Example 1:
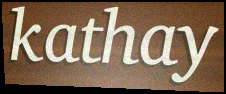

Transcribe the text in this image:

kathay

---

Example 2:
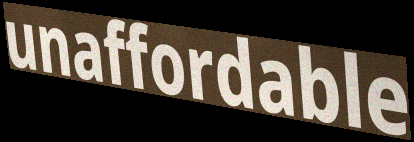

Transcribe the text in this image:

unaffordable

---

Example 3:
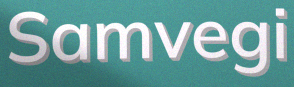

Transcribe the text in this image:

Samvegi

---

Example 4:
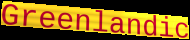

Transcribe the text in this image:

Greenlandic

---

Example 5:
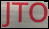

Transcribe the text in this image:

JTO